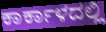
ಕಾರ್ಕಾಳದಲ್ಲಿ